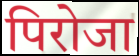
पिरोजा